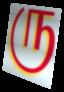
ரு